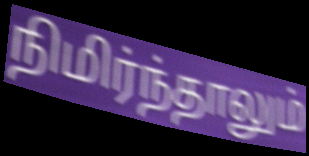
நிமிர்ந்தாலும்